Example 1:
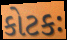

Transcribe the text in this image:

કોટકઃ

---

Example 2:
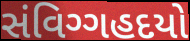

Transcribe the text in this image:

સંવિગ્ગહદયો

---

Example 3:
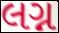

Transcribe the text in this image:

લગ્ન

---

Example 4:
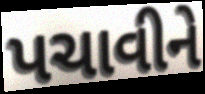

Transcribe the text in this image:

પચાવીને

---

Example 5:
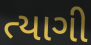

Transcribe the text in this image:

ત્યાગી